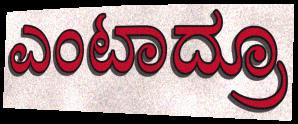
ಎಂಟಾದ್ರೂ